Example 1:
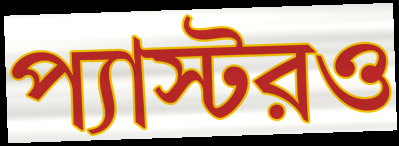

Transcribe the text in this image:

প্যাস্টরও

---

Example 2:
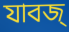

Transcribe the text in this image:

যাবজ্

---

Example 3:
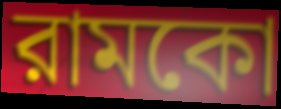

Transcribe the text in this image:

রামকো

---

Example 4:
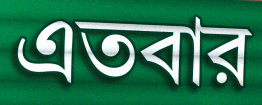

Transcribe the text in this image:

এতবার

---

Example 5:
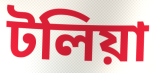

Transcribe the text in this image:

টলিয়া